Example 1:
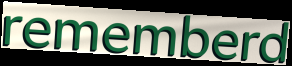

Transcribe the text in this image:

rememberd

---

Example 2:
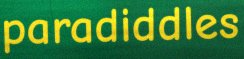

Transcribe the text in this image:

paradiddles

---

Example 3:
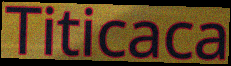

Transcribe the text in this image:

Titicaca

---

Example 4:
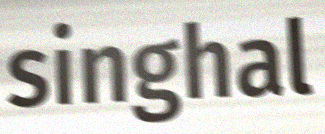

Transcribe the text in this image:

singhal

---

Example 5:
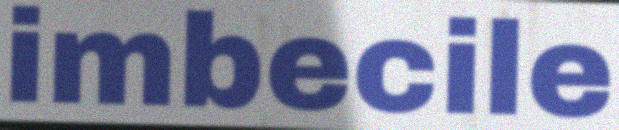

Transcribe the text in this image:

imbecile